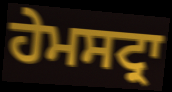
ਹੇਮਸਟ੍ਰਾ